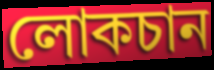
লোকচান